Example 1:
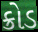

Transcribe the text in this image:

ક્રોડ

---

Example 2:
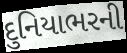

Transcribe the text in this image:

દુનિયાભરની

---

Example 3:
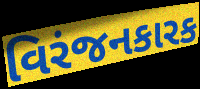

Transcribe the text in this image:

વિરંજનકારક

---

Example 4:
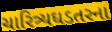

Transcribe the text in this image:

ચારિત્ર્યઘડતરના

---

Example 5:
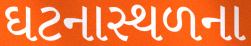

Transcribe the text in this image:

ઘટનાસ્થળના